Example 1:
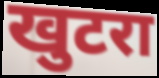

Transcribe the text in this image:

खुटरा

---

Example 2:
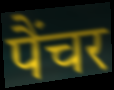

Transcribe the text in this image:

पैंचर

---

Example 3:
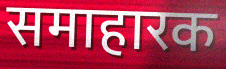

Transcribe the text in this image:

समाहारक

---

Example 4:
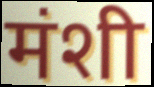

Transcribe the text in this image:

मंशी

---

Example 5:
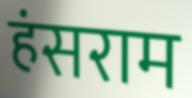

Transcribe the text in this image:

हंसराम